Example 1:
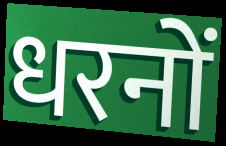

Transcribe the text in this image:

धरनों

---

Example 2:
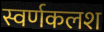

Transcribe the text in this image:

स्वर्णकलश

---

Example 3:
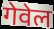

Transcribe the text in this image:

गेवेल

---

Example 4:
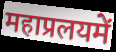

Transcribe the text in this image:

महाप्रलयमें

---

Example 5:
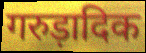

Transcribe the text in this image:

गरुड़ादिक